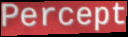
Percept